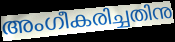
അംഗീകരിച്ചതിനു